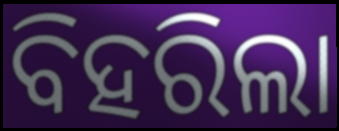
ବିହରିଲା